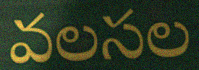
వలసల